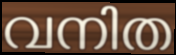
വനിത